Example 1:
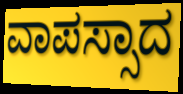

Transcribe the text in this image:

ವಾಪಸ್ಸಾದ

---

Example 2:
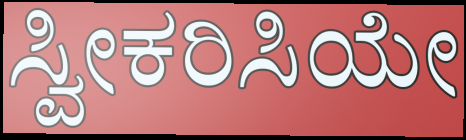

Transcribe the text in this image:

ಸ್ವೀಕರಿಸಿಯೇ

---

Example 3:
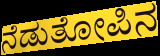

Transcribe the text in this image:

ನೆಡುತೋಪಿನ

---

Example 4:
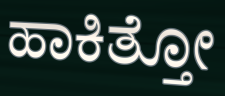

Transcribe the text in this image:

ಹಾಕಿತ್ತೋ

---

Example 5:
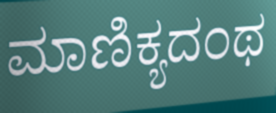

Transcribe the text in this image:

ಮಾಣಿಕ್ಯದಂಥ